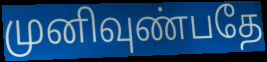
முனிவுண்பதே